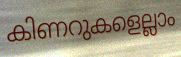
കിണറുകളെല്ലാം